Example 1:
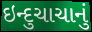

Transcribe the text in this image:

ઇન્દુચાચાનું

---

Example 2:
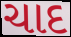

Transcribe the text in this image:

ચાદ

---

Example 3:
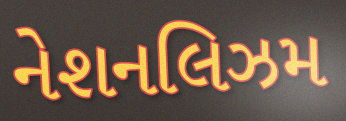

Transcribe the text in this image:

નેશનલિઝમ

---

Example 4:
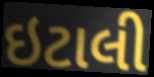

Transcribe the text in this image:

ઇટાલી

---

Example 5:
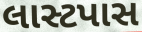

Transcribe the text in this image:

લાસ્ટપાસ